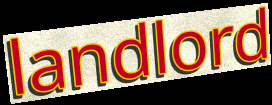
landlord